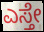
ಎಸ್ತೇ